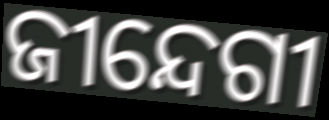
ଜୀନ୍ଦେଗୀ